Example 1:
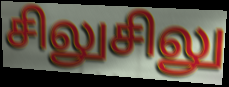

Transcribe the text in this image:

சிலுசிலு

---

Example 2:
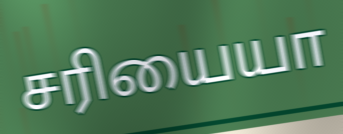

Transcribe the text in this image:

சரியையா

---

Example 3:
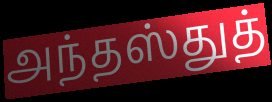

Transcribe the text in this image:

அந்தஸ்துத்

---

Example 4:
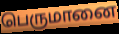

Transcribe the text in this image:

பெருமானை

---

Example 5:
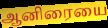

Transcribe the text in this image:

ஆனிரையை